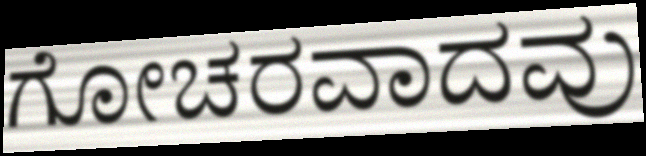
ಗೋಚರವಾದವು